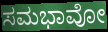
ಸಮಭಾವೋ